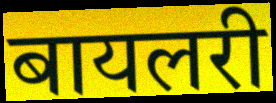
बायलरी